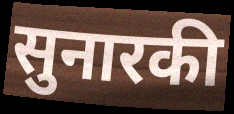
सुनारकी